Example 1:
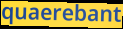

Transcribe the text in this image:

quaerebant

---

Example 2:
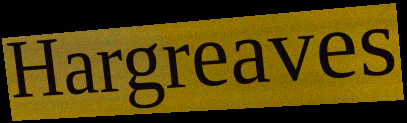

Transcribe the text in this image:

Hargreaves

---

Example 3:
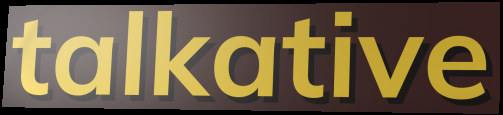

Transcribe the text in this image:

talkative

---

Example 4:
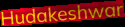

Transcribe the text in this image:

Hudakeshwar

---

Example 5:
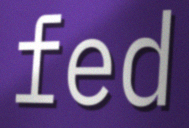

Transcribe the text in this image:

fed